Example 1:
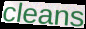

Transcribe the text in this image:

cleans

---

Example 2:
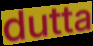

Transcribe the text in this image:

dutta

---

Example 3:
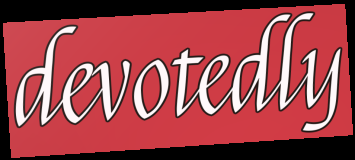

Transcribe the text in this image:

devotedly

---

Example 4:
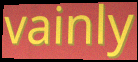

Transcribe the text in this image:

vainly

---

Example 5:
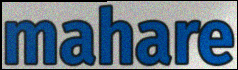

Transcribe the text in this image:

mahare